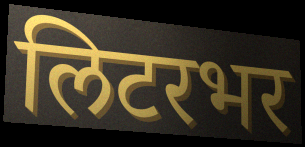
लिटरभर